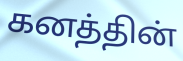
கனத்தின்